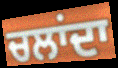
ਚਲਾਂਦਾ